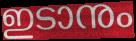
ഇടാനും